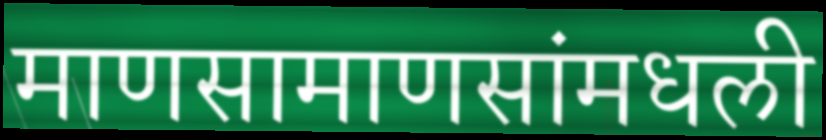
माणसामाणसांमधली